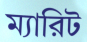
ম্যারিট